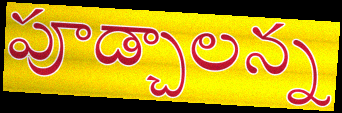
పూడ్చాలన్న